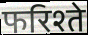
फरिश्ते